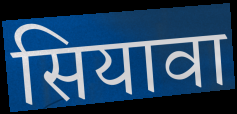
सियावा